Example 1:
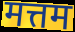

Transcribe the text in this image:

मत्तम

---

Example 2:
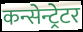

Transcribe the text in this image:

कन्सेन्ट्रेटर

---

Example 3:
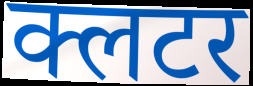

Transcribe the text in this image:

क्लटर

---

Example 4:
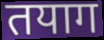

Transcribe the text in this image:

तयाग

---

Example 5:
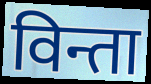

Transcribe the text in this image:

विन्ता